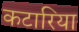
कटारिया